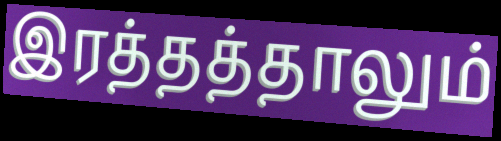
இரத்தத்தாலும்